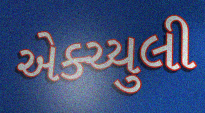
એક્ચ્યુલી